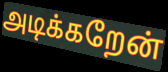
அடிக்கறேன்